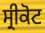
ਸ੍ਰੀਕੋਟ